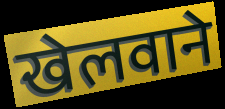
खेलवाने